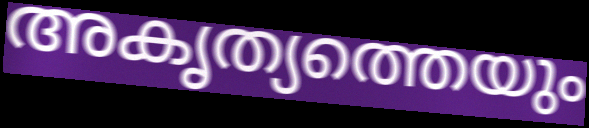
അകൃത്യത്തെയും